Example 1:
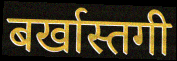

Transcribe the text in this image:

बर्खास्तगी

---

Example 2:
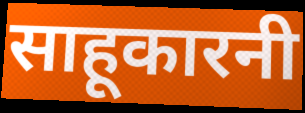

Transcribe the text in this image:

साहूकारनी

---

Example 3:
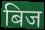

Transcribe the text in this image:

बिज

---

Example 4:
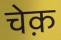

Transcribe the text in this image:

चेक़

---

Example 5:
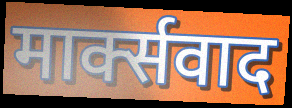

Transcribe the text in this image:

मार्क्सवाद